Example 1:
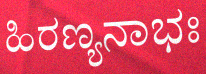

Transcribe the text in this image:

ಹಿರಣ್ಯನಾಭಃ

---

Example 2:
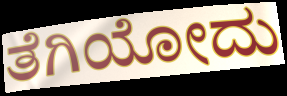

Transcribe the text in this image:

ತೆಗಿಯೋದು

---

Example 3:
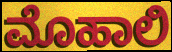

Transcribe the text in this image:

ಮೊಹಾಲಿ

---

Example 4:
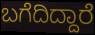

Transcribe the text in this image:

ಬಗೆದಿದ್ದಾರೆ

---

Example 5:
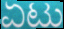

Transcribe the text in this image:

ಏಟು